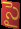
సై